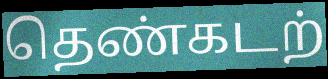
தெண்கடற்